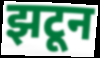
झटून